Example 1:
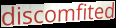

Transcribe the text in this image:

discomfited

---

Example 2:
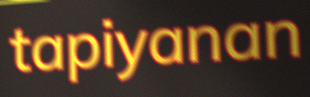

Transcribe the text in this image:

tapiyanan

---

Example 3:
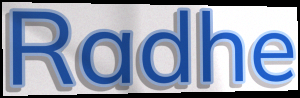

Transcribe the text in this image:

Radhe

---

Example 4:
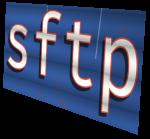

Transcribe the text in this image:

sftp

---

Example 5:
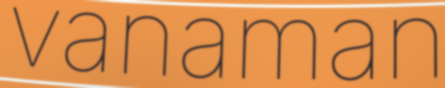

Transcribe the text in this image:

vanaman